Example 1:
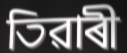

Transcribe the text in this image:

তিৱাৰী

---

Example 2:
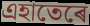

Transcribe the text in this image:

এহাতেৰে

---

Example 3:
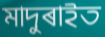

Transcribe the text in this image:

মাদুৰাইত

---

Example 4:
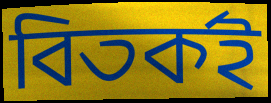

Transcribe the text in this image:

বিতৰ্কই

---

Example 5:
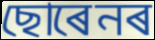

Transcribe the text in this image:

ছোৰেনৰ